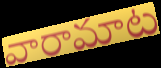
వారామాట